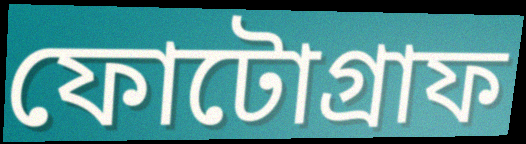
ফোটোগ্রাফ